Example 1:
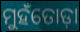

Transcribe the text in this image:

ମୁହଁତୋଡ଼ା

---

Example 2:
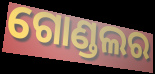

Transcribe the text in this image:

ଗୋଣ୍ଡଲର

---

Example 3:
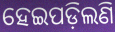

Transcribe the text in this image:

ହେଇପଡ଼ିଲଣି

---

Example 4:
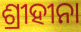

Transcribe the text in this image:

ଶ୍ରୀହୀନା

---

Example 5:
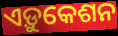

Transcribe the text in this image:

ଏଡ଼ୁକେଶନ